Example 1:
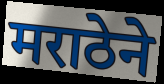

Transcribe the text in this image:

मराठेने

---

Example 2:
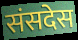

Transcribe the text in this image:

संसदेस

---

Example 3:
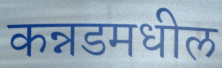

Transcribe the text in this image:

कन्नडमधील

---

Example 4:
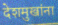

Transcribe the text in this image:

देशमुखांना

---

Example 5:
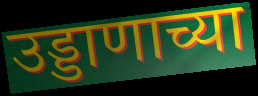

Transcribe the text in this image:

उड्डाणाच्या